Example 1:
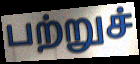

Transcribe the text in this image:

பற்றுச்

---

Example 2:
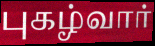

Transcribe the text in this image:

புகழ்வார்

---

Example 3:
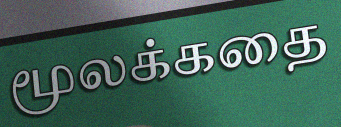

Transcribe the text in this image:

மூலக்கதை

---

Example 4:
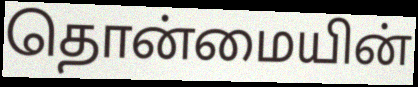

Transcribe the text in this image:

தொன்மையின்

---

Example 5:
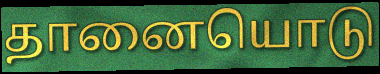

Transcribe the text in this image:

தானையொடு